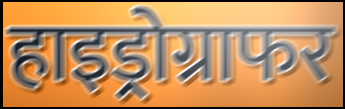
हाइड्रोग्राफर